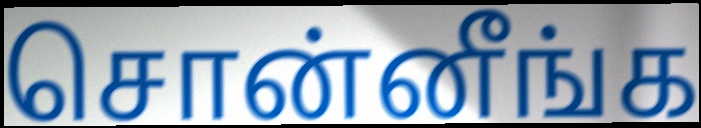
சொன்னீங்க